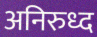
अनिरुध्द